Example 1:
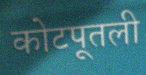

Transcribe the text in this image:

कोटपूतली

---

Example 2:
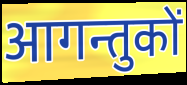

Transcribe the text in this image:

आगन्तुकों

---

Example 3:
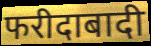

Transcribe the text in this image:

फरीदाबादी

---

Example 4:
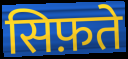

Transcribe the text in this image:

सिफ़ते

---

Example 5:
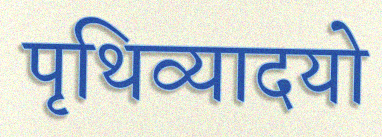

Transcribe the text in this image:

पृथिव्यादयो